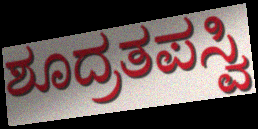
ಶೂದ್ರತಪಸ್ವಿ